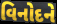
વિનોદને